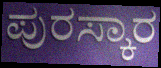
ಪುರಸ್ಕಾರ